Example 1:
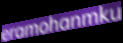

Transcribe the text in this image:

eramohanmku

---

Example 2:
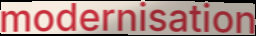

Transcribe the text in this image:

modernisation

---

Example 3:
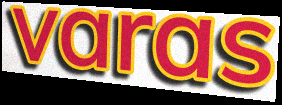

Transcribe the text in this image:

varas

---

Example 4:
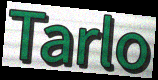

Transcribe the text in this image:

Tarlo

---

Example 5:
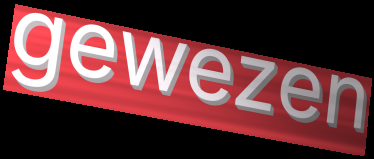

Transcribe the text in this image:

gewezen